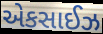
એકસાઈઝ